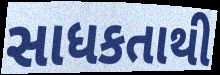
સાધકતાથી